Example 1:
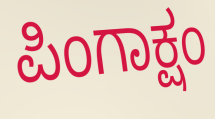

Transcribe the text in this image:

ಪಿಂಗಾಕ್ಷಂ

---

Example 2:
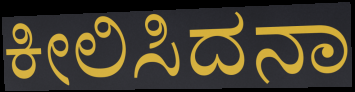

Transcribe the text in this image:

ಕೀಲಿಸಿದನಾ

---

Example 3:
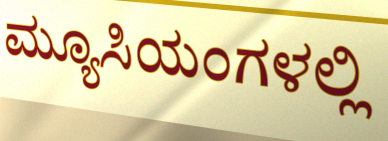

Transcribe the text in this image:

ಮ್ಯೂಸಿಯಂಗಳಲ್ಲಿ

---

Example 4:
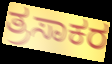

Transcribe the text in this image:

ತ್ರಸಾಕರ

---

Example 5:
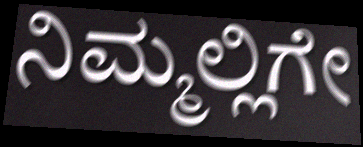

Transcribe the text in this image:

ನಿಮ್ಮಲ್ಲಿಗೇ